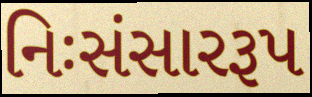
નિઃસંસારરૂપ